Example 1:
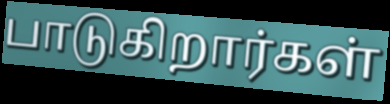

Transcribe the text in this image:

பாடுகிறார்கள்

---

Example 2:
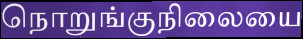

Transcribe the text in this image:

நொறுங்குநிலையை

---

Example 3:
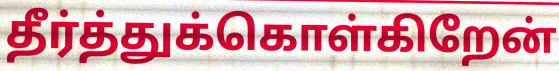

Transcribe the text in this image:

தீர்த்துக்கொள்கிறேன்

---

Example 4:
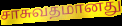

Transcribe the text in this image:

சாசுவதமானது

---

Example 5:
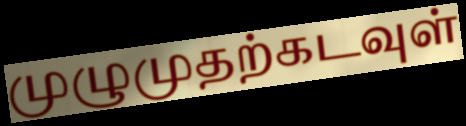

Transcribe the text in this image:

முழுமுதற்கடவுள்